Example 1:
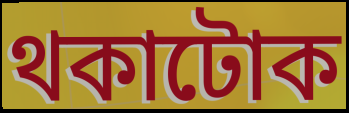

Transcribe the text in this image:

থকাটোক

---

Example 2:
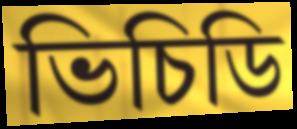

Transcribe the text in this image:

ভিচিডি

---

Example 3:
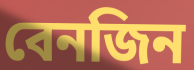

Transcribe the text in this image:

বেনজিন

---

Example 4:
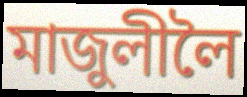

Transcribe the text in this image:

মাজুলীলৈ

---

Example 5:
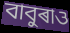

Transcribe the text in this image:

বাবুৰাও